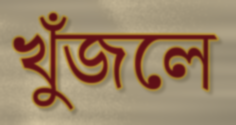
খুঁজলে